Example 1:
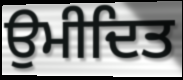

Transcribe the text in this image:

ਉਮੀਦਿਤ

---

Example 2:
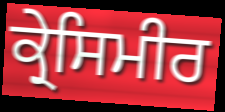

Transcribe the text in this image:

ਕ੍ਰੇਸਿਮੀਰ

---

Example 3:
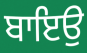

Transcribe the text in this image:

ਬਾਇਉ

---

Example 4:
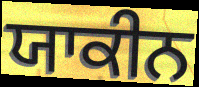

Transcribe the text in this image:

ਯਾਕੀਨ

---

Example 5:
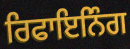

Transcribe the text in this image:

ਰਿਫਾਇਨਿੰਗ